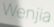
Wenjia